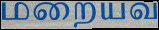
மறையவ